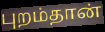
புறம்தான்